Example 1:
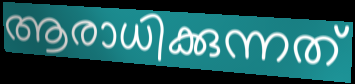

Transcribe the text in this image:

ആരാധിക്കുന്നത്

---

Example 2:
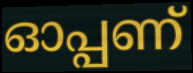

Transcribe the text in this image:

ഓപ്പണ്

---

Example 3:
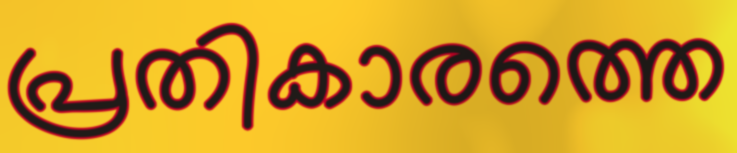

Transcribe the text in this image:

പ്രതികാരത്തെ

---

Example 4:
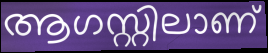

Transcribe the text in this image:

ആഗസ്റ്റിലാണ്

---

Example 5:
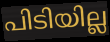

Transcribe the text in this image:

പിടിയില്ല